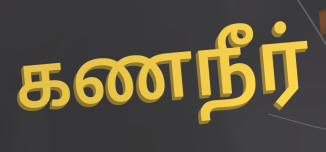
கணநீர்